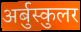
अर्बुस्कुलर